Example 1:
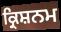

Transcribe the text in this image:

ਕ੍ਰਿਸ਼ਨਮ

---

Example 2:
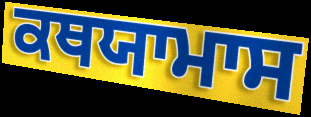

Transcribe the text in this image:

ਕਥਯਾਮਾਸ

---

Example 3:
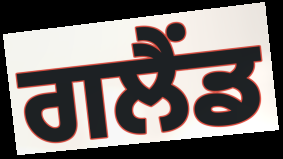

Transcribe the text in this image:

ਗਲੈਂਡ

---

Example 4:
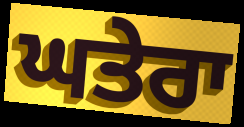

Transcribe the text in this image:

ਘਤੇਰਾ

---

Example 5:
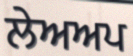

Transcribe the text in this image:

ਲੇਅਅਪ